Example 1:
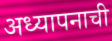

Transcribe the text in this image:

अध्यापनाची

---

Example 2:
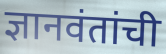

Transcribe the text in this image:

ज्ञानवंतांची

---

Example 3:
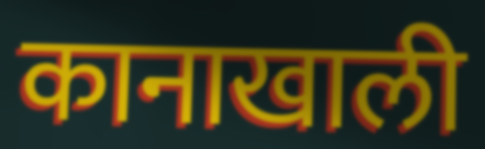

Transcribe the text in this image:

कानाखाली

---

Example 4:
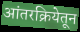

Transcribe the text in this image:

आंतरक्रियेतून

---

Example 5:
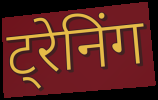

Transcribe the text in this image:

ट्रेनिंग